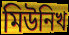
মিউনিখ